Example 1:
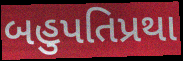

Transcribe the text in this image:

બહુપતિપ્રથા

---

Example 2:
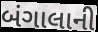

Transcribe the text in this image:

બંગાલાની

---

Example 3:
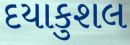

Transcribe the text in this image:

દયાકુશલ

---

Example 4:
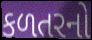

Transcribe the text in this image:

કળતરનો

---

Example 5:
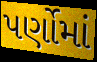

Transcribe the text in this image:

પર્ણોમાં